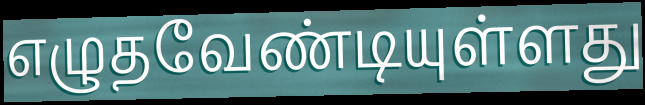
எழுதவேண்டியுள்ளது